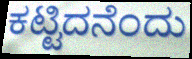
ಕಟ್ಟಿದನೆಂದು